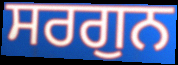
ਸਰਗੁਨ